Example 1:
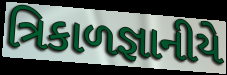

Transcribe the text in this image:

ત્રિકાળજ્ઞાનીયે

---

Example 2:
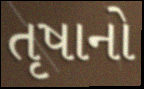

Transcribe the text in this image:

તૃષાનો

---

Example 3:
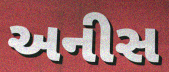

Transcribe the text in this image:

અનીસ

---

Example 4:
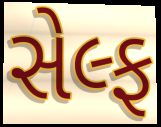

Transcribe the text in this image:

સેલ્ફ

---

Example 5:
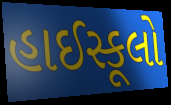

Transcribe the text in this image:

હાઈસ્કૂલો